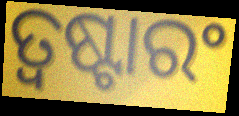
ତ୍ୱଷ୍ଟାରଂ